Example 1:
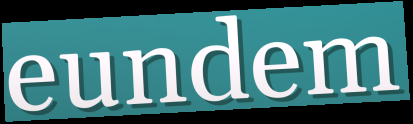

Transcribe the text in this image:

eundem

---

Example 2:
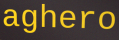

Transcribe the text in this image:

aghero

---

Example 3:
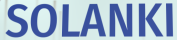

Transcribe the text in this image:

SOLANKI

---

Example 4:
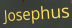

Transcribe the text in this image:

Josephus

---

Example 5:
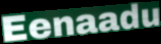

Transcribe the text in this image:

Eenaadu